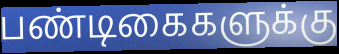
பண்டிகைகளுக்கு